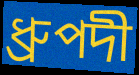
ধ্ৰুপদী